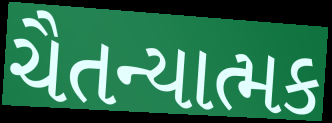
ચૈતન્યાત્મક